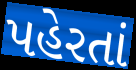
પહેરતાં